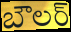
బౌలర్